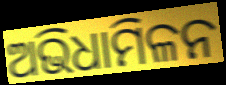
ଅଭିଧାମିଳନ